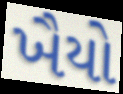
ખૈયો